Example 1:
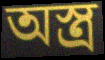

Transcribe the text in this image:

অস্ত্র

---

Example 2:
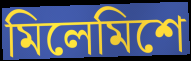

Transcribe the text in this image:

মিলেমিশে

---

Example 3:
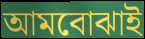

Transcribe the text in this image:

আমবোঝাই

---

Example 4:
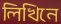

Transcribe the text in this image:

লিখিনে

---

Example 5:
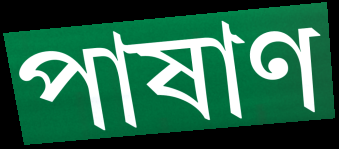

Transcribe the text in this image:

পাষাণ